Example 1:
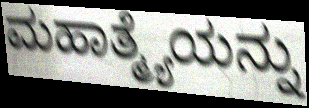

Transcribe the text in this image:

ಮಹಾತ್ಮ್ಯೆಯನ್ನು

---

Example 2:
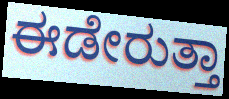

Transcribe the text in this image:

ಈಡೇರುತ್ತಾ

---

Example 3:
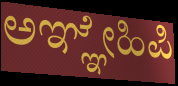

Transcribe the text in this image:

ಅಞ್ಞೇಹಿಪಿ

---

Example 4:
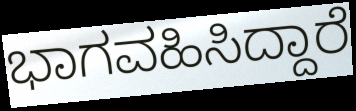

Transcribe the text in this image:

ಭಾಗವಹಿಸಿದ್ದಾರೆ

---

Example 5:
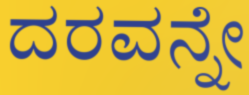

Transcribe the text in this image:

ದರವನ್ನೇ